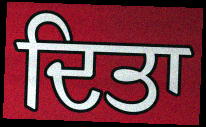
ਦਿਤਾ